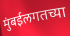
मुंबईलगतच्या